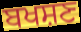
ਬਖਸ਼ਣ